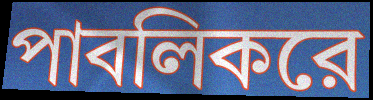
পাবলিকরে